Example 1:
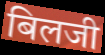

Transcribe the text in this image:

बिलजी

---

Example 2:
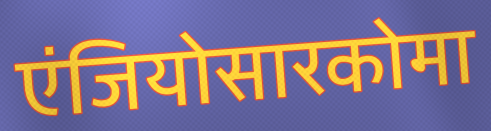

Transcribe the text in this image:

एंजियोसारकोमा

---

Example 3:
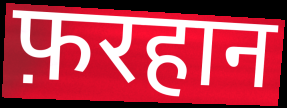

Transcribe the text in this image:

फ़रहान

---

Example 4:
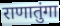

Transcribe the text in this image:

राणातुंगा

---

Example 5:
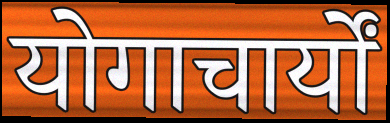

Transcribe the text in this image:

योगाचार्यों